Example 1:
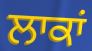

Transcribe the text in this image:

ਲਾਕਾਂ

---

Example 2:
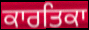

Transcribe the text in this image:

ਕਾਰਤਿਕਾ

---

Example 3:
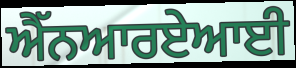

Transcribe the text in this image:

ਐੱਨਆਰਏਆਈ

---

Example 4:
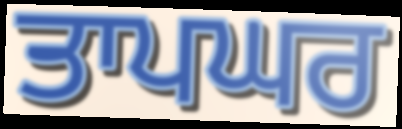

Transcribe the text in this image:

ਤਾਪਘਰ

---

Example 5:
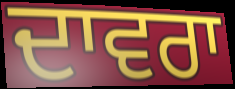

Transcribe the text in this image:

ਦਾਵਰਾ